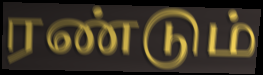
ரண்டும்